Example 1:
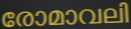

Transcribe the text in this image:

രോമാവലി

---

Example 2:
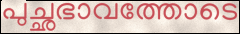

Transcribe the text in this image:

പുച്ഛഭാവത്തോടെ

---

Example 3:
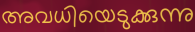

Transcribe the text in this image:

അവധിയെടുക്കുന്നു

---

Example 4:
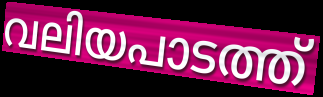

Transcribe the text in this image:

വലിയപാടത്ത്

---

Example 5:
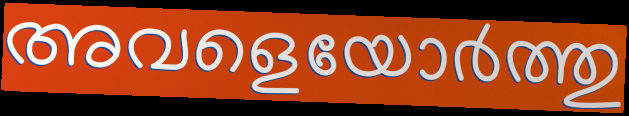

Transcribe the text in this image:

അവളെയോർത്തു